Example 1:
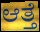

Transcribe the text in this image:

ಆತ್ತೆ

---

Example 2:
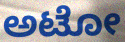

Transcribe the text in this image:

ಅಟೋ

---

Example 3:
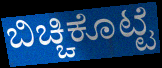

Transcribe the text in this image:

ಬಿಚ್ಚಿಕೊಟ್ಟೆ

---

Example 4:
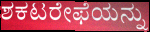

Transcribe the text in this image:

ಶಕಟರೇಫೆಯನ್ನು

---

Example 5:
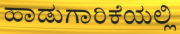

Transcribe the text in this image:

ಹಾಡುಗಾರಿಕೆಯಲ್ಲಿ